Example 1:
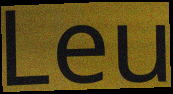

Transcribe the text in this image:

Leu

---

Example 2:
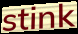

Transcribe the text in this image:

stink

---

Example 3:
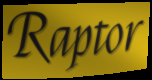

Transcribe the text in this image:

Raptor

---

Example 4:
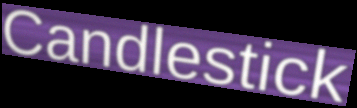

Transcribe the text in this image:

Candlestick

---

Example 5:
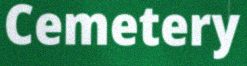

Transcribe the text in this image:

Cemetery